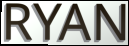
RYAN